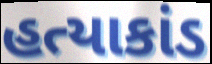
હત્યાકાંડ